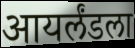
आयर्लंडला